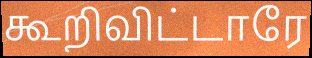
கூறிவிட்டாரே